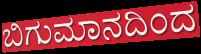
ಬಿಗುಮಾನದಿಂದ